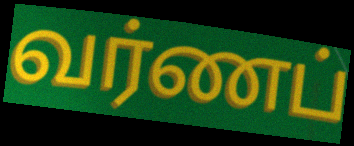
வர்ணப்